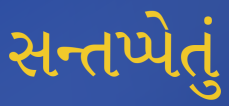
સન્તપ્પેતું